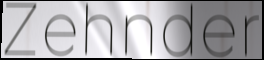
Zehnder